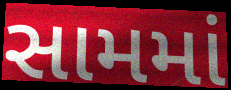
સામમાં